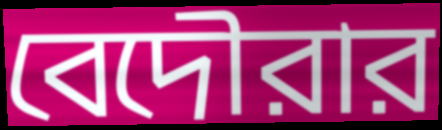
বেদৌরার